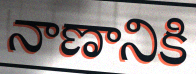
నాణానికి